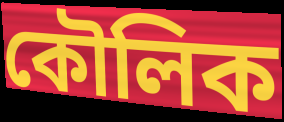
কৌলিক